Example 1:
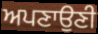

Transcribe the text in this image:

ਅਪਣਾਉਣੀ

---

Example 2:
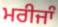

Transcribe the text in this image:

ਮਰੀਜਾੰ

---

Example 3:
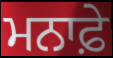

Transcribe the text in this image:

ਮਨਾਫ਼ੇ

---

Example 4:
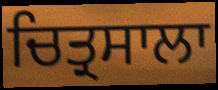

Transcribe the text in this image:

ਚਿਤ੍ਰਸਾਲਾ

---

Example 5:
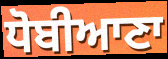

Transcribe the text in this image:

ਧੋਬੀਆਣਾ